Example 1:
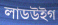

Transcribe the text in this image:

লাডউইগ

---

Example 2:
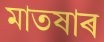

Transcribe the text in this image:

মাতষাৰ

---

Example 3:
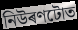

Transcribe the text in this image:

নিউৰণটোত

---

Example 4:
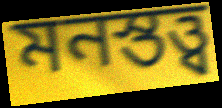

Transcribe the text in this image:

মনস্তত্ত্ব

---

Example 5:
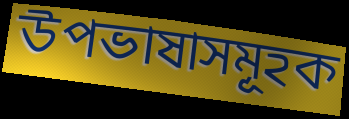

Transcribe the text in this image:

উপভাষাসমূহক